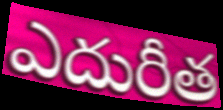
ఎదురీత